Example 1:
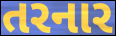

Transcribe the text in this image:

તરનાર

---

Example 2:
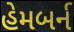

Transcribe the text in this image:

હેમબર્ન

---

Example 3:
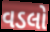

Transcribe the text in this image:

વડલો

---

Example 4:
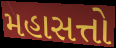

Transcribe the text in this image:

મહાસત્તો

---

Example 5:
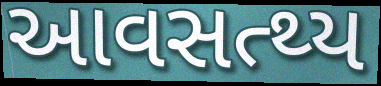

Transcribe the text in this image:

આવસત્થ્ય